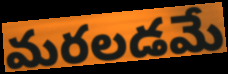
మరలడమే